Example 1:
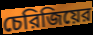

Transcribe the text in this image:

চেরিজিয়ের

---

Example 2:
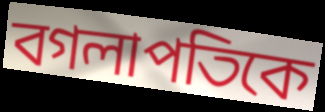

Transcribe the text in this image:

বগলাপতিকে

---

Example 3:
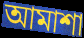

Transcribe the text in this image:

আমাশা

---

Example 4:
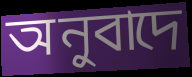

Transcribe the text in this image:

অনুবাদে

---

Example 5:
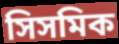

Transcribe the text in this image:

সিসমিক